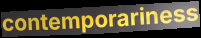
contemporariness